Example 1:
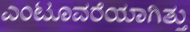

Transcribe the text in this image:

ಎಂಟೂವರೆಯಾಗಿತ್ತು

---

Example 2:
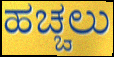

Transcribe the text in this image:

ಹಚ್ಚಲು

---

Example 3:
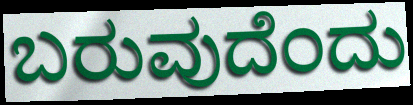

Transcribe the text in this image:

ಬರುವುದೆಂದು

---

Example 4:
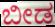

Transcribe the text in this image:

ಬೀಡ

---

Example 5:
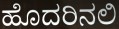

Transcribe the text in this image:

ಹೊದರಿನಲಿ